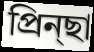
প্রিন্ছা